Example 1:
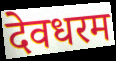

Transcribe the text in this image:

देवधरम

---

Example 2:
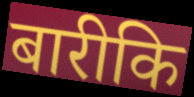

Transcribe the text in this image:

बारीकि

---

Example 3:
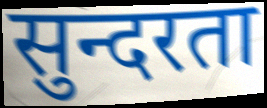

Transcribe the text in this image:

सुन्दरता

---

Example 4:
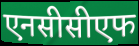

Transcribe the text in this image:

एनसीसीएफ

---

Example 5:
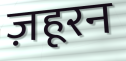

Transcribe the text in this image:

ज़हूरन